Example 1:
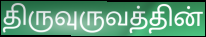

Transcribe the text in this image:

திருவுருவத்தின்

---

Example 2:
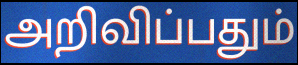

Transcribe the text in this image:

அறிவிப்பதும்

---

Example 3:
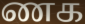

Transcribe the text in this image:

ணக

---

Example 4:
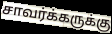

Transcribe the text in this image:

சாவர்க்கருக்கு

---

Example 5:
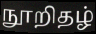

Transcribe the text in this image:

நூறிதழ்